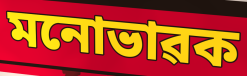
মনোভাৱক